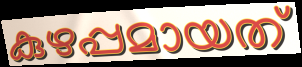
കുഴപ്പമായത്